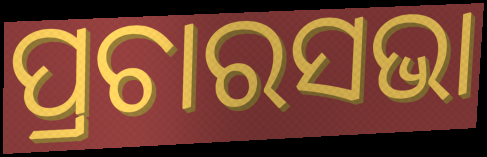
ପ୍ରଚାରସଭା